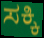
ಸಕ್ಕಿ